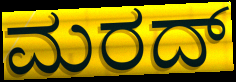
ಮರದ್